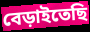
বেড়াইতেছি